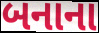
બનાના